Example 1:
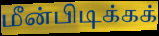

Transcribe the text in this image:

மீன்பிடிக்கக்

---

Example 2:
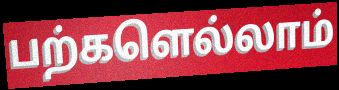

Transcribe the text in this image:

பற்களெல்லாம்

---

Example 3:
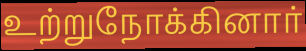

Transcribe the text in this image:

உற்றுநோக்கினார்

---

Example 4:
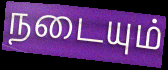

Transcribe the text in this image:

நடையும்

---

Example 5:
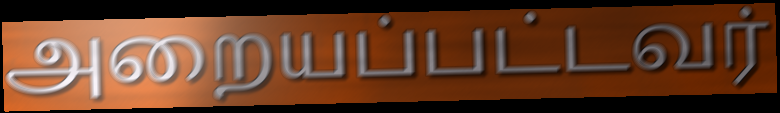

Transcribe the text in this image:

அறையப்பட்டவர்